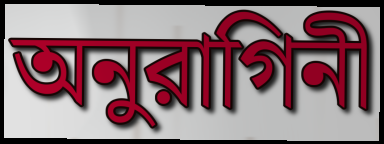
অনুরাগিনী